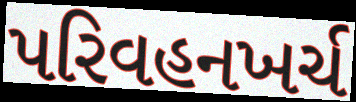
પરિવહનખર્ચ